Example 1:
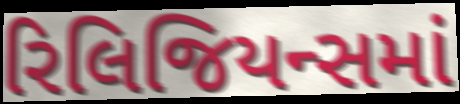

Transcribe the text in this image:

રિલિજિયન્સમાં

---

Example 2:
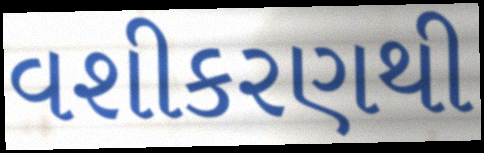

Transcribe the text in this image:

વશીકરણથી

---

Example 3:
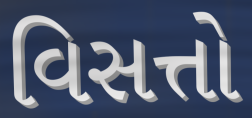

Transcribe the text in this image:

વિસત્તો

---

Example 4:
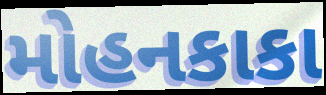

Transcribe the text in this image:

મોહનકાકા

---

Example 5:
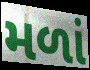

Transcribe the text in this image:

મળાં